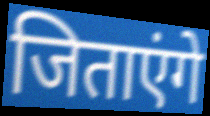
जिताएंगे